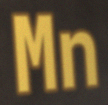
Mn